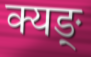
क्यङ्